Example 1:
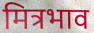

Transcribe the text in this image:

मित्रभाव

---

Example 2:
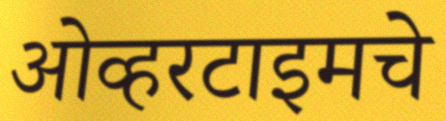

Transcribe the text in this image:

ओव्हरटाइमचे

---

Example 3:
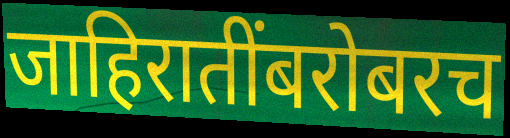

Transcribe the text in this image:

जाहिरातींबरोबरच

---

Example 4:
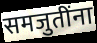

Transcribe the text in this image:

समजुतींना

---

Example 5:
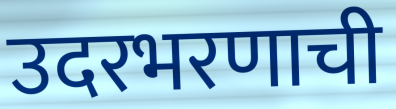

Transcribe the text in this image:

उदरभरणाची